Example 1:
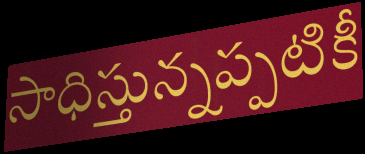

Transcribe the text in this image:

సాధిస్తున్నప్పటికీ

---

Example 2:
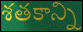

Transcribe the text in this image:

శతకాన్ని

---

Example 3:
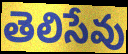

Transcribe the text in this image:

తెలిసేవు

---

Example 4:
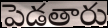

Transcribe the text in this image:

పెడతారు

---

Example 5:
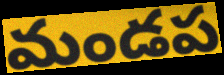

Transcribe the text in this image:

మండప